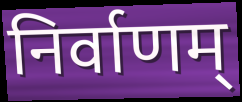
निर्वाणम्